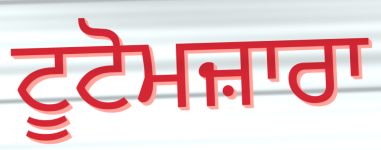
ਟੂਟੋਮਜ਼ਾਰਾ